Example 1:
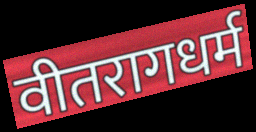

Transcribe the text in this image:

वीतरागधर्म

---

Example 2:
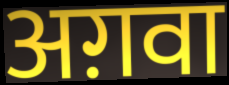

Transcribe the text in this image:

अग़वा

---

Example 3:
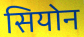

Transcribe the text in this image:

सियोन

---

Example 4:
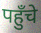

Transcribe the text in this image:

पहुँचे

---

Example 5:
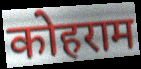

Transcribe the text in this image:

कोहराम